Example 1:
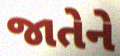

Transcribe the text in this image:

જાતેને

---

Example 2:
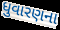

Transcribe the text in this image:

ધુવારણના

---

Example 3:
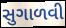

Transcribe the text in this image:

સુગાળવી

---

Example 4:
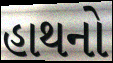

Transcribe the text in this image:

હાથનો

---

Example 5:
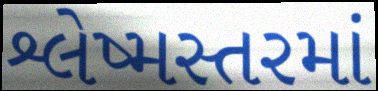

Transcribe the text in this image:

શ્લેષ્મસ્તરમાં